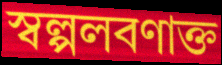
স্বল্পলবণাক্ত